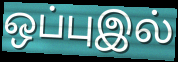
ஒப்புஇல்